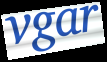
vgar